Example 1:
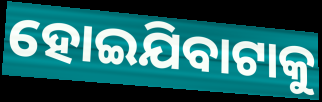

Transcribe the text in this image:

ହୋଇଯିବାଟାକୁ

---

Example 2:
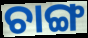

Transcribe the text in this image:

ଚାଙ୍ଗ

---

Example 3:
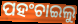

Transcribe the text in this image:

ପହଂଚାଇଲୁ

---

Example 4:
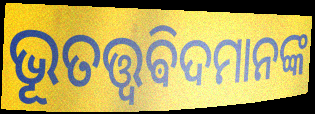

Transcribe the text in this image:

ଭୂତତ୍ତ୍ୱଵିଦମାନଙ୍କ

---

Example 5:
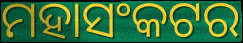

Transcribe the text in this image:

ମହାସଂକଟର